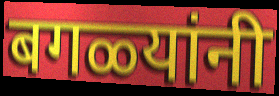
बगळ्यांनी